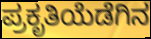
ಪ್ರಕೃತಿಯೆಡೆಗಿನ